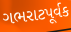
ગભરાટપૂર્વક